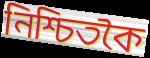
নিশ্চিতকৈ